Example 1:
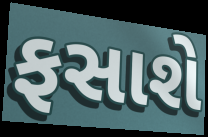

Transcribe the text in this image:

ફસાશે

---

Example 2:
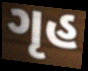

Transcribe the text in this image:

ગૃહ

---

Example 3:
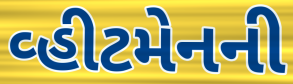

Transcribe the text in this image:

વ્હીટમેનની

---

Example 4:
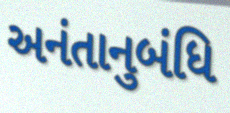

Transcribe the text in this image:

અનંતાનુબંધિ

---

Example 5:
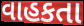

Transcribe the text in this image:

વાહકતા